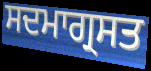
ਸਦਮਾਗ੍ਰਸਤ